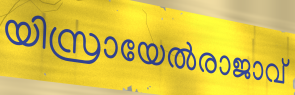
യിസ്രായേൽരാജാവ്